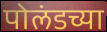
पोलंडच्या